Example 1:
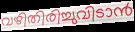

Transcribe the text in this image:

വഴിതിരിച്ചുവിടാൻ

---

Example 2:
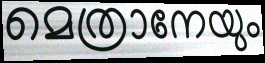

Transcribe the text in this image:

മെത്രാനേയും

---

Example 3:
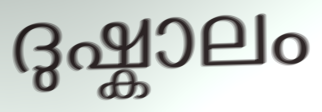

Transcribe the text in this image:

ദുഷ്കാലം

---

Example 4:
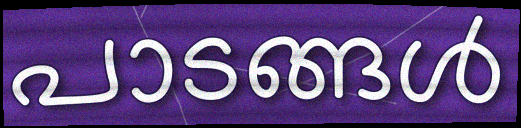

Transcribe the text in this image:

പാടങ്ങൾ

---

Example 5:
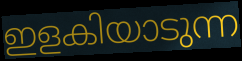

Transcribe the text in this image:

ഇളകിയാടുന്ന